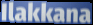
Ilakkana